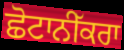
ਛੋਟਾਨੀੱਕਰਾ